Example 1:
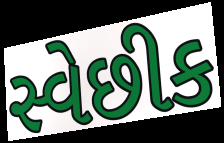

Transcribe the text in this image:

સ્વેછીક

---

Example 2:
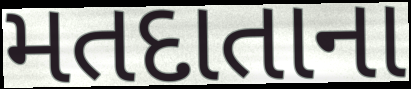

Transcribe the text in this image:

મતદાતાના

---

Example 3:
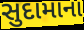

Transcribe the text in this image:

સુદામાના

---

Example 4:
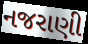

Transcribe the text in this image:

નજરાણી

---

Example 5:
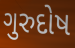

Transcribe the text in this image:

ગુરુદોષ